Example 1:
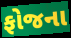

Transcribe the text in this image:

ફોજના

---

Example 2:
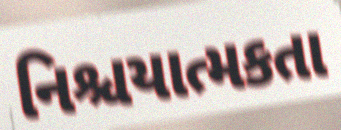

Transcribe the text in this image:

નિશ્ચયાત્મકતા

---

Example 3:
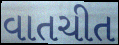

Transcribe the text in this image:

વાતચીત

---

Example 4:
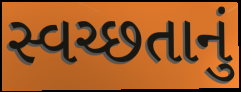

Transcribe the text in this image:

સ્વચ્છતાનું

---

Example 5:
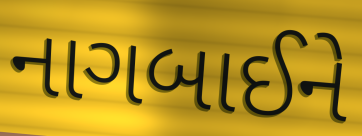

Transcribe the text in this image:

નાગબાઈને